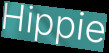
Hippie